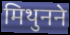
मिथुनने